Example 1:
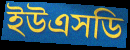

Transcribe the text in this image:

ইউএসডি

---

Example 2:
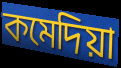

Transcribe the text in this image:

কমেদিয়া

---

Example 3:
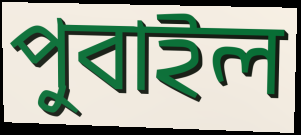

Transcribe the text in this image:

পুবাইল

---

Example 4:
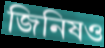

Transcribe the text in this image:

জিনিষও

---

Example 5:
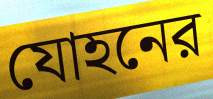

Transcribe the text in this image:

যোহনের